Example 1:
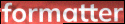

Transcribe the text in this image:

formatter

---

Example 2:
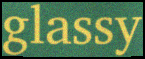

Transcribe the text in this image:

glassy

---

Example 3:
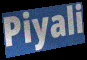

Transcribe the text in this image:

Piyali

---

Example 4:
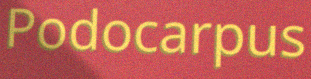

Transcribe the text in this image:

Podocarpus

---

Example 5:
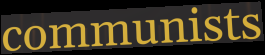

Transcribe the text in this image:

communists